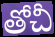
తోచీ